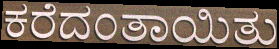
ಕರೆದಂತಾಯಿತು